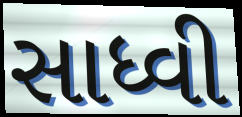
સાધ્વી